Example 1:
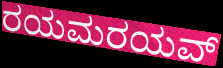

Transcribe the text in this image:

ರಯಮರಯವ್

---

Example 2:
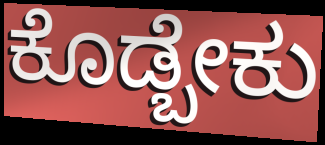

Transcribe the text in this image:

ಕೊಡ್ಬೇಕು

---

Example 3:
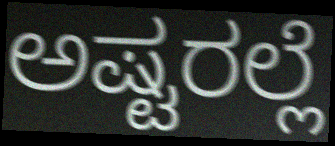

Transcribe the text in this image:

ಅಷ್ಟರಲ್ಲೆ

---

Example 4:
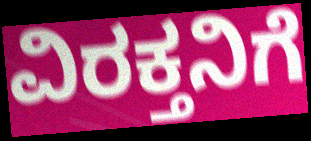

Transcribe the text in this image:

ವಿರಕ್ತನಿಗೆ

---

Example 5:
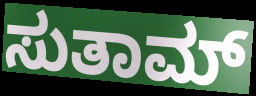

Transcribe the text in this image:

ಸುತಾಮ್